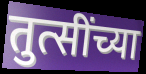
तुत्सींच्या